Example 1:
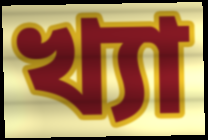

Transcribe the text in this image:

খ্যা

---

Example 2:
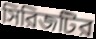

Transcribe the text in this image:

সিরিজটির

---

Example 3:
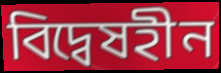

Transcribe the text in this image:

বিদ্বেষহীন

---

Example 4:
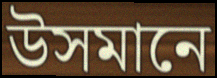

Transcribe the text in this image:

উসমানে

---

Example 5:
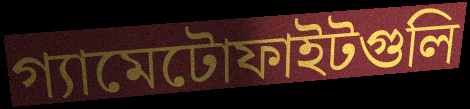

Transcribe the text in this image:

গ্যামেটোফাইটগুলি